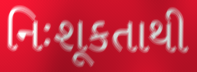
નિઃશૂકતાથી